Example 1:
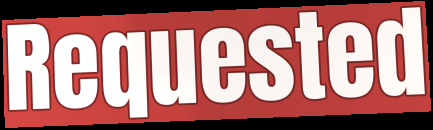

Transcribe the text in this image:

Requested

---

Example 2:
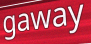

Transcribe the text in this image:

gaway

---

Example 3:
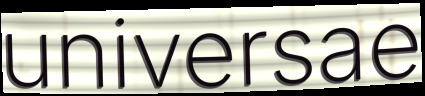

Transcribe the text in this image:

universae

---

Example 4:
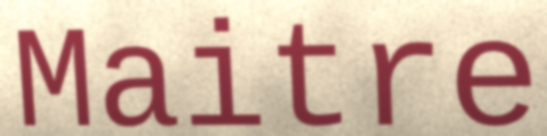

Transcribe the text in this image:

Maitre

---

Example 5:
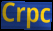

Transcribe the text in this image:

Crpc